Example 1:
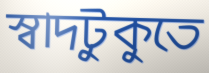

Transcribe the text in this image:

স্বাদটুকুতে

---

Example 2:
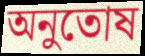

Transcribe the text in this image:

অনুতোষ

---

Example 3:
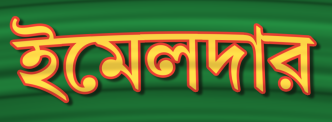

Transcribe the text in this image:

ইমেলদার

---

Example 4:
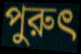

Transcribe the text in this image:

পুরুৎ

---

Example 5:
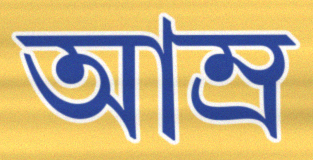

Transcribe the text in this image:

আম্র